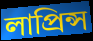
লাপ্রিন্স